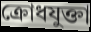
ক্রোধযুক্তা